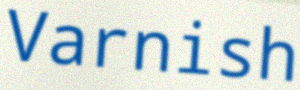
Varnish